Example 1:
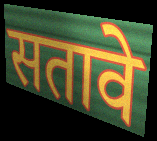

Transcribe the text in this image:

सतावे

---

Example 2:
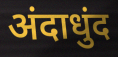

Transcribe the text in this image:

अंदाधुंद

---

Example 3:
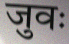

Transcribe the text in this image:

जुवः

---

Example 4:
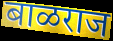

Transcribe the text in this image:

बाळराज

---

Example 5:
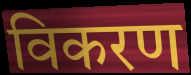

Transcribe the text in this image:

विकरण